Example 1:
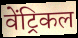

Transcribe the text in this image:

वेंट्रिकल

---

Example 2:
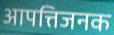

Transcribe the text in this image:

आपत्तिजनक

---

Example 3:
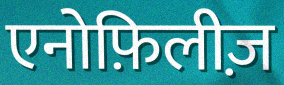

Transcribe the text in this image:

एनोफ़िलीज़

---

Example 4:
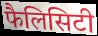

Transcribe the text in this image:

फैलिसिटी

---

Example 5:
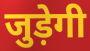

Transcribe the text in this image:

जुड़ेगी